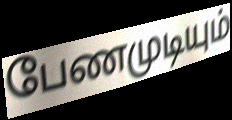
பேணமுடியும்